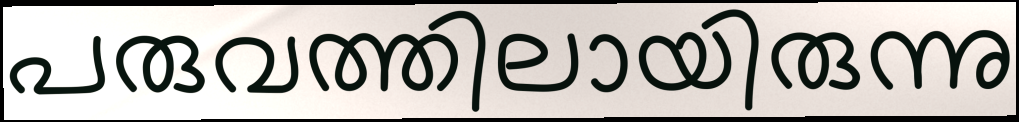
പരുവത്തിലായിരുന്നു